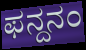
ಫನ್ದನಂ